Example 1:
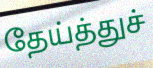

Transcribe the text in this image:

தேய்த்துச்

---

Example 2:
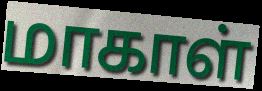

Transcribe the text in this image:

மாகாள்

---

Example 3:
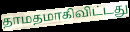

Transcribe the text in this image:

தாமதமாகிவிட்டது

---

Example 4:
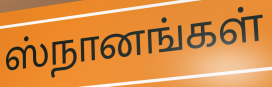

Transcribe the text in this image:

ஸ்நானங்கள்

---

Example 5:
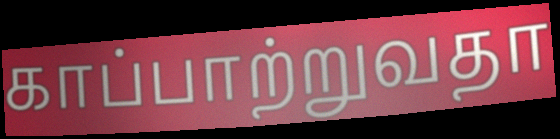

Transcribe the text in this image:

காப்பாற்றுவதா